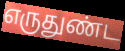
எருதுண்ட